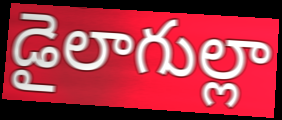
డైలాగుల్లా